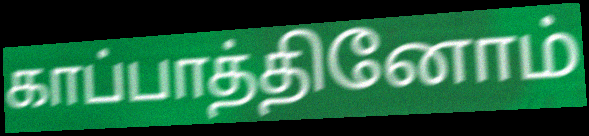
காப்பாத்தினோம்